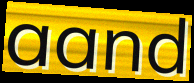
aand